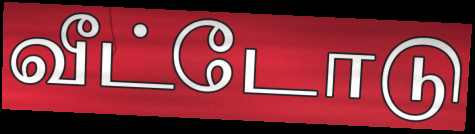
வீட்டோடு